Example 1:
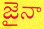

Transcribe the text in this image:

జైనా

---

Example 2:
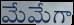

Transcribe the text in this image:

మేమేగా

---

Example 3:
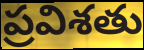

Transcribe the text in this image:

ప్రవిశతు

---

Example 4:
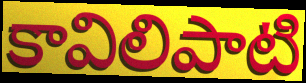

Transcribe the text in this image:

కావిలిపాటి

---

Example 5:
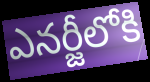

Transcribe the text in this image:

ఎనర్జీలోకి